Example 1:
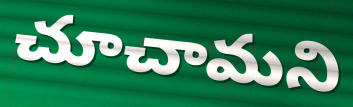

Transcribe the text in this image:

చూచామని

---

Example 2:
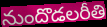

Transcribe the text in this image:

నుందొడలరీతి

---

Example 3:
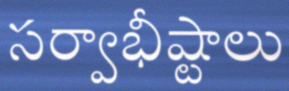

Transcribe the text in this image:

సర్వాభీష్టాలు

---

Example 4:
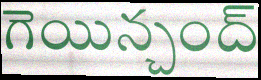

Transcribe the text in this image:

గెయిన్చంద్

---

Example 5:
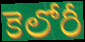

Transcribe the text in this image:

కెలోరీ